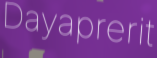
Dayaprerit